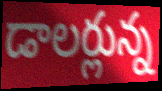
డాలర్లున్న